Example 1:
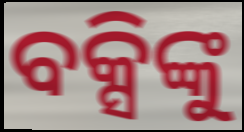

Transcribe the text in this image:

ବକ୍ସିଙ୍କୁ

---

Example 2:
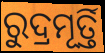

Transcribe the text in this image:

ରୁଦ୍ରମୂର୍ତ୍ତି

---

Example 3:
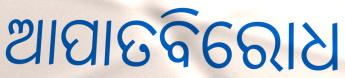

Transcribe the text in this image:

ଆପାତବିରୋଧ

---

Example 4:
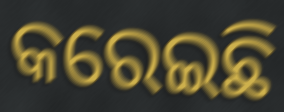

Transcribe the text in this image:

କରେଇଛି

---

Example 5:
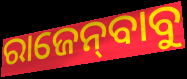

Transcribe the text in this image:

ରାଜେନ୍‌ବାବୁ